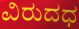
ವಿರುದಧ